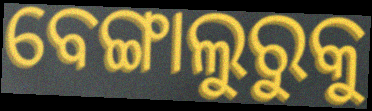
ବେଙ୍ଗାଲୁରୁକୁ